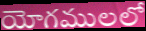
యోగములలో